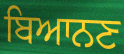
ਬਿਆਨਣ